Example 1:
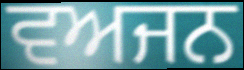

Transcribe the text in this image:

ਵਅਜਨ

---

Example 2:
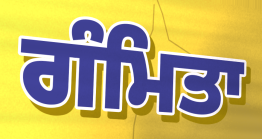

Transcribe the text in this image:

ਗੰਮਿਤਾ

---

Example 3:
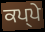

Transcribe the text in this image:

ਕਪ੍ਪੇ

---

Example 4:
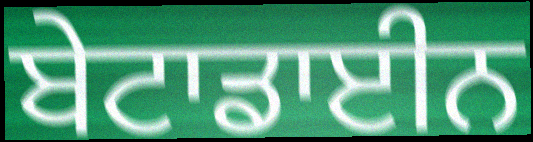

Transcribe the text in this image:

ਬੇਟਾਡਾਈਨ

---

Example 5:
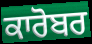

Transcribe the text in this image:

ਕਾਰੋਬਰ